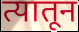
त्यातून